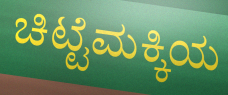
ಚಿಟ್ಟೆಮಕ್ಕಿಯ